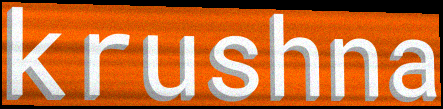
krushna